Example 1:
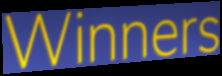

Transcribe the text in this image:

Winners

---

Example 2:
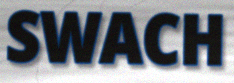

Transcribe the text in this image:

SWACH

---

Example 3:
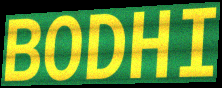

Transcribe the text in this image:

BODHI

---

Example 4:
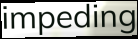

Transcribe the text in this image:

impeding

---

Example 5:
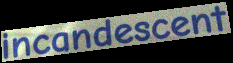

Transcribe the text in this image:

incandescent